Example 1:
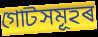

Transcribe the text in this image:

গোটসমূহৰ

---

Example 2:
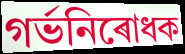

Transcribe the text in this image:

গৰ্ভনিৰোধক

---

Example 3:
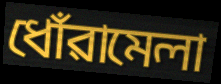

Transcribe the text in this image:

ধোঁৱামেলা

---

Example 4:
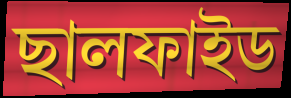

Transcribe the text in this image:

ছালফাইড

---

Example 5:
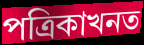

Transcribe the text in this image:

পত্ৰিকাখনত